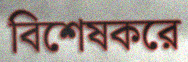
বিশেষকরে